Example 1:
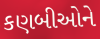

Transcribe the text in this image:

કણબીઓને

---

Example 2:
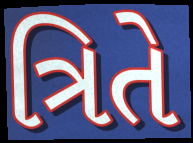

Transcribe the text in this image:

ત્રિતે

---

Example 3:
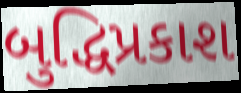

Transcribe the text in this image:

બુદ્ધિપ્રકાશ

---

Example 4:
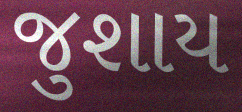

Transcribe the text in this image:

જુશાય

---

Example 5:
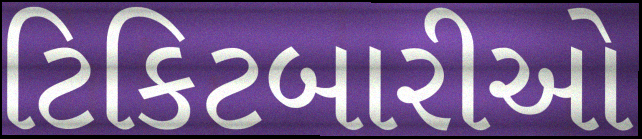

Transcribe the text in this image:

ટિકિટબારીઓ